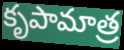
కృపామాత్ర